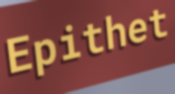
Epithet